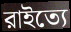
রাইত্যে